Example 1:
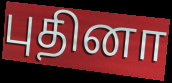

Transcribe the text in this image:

புதினா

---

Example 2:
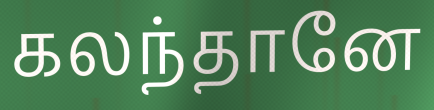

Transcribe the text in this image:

கலந்தானே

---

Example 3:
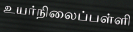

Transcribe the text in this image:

உயர்நிலைப்பள்ளி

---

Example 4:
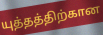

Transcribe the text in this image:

யுத்தத்திற்கான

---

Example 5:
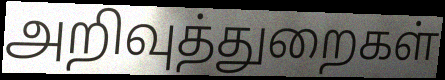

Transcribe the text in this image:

அறிவுத்துறைகள்